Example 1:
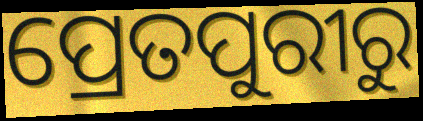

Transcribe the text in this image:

ପ୍ରେତପୁରୀରୁ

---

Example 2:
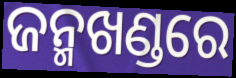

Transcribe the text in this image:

ଜନ୍ମଖଣ୍ଡରେ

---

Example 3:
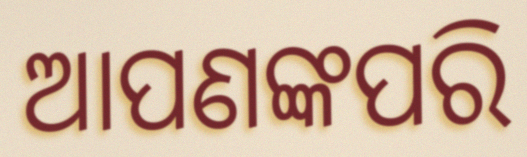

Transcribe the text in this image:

ଆପଣଙ୍କପରି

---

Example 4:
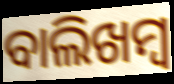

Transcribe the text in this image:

ବାଲିଖମ୍ବ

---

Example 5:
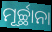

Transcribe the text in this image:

ମୂର୍ଚ୍ଛାନା